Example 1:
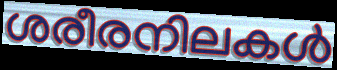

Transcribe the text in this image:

ശരീരനിലകൾ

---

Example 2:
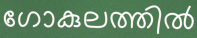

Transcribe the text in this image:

ഗോകുലത്തിൽ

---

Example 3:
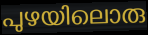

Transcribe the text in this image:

പുഴയിലൊരു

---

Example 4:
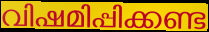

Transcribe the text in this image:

വിഷമിപ്പിക്കണ്ട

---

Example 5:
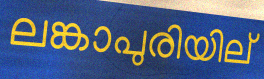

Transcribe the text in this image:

ലങ്കാപുരിയില്